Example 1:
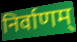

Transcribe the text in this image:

निर्वाणम्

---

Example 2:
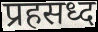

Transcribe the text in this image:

प्रहसध्द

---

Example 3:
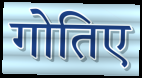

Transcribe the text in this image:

गोतिए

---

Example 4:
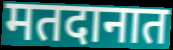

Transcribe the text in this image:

मतदानात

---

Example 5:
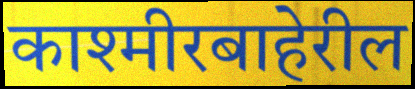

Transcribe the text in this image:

काश्मीरबाहेरील